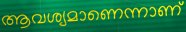
ആവശ്യമാണെന്നാണ്